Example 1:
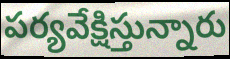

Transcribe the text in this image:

పర్యవేక్షిస్తున్నారు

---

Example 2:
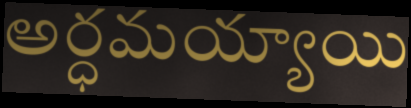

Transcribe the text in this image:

అర్ధమయ్యాయి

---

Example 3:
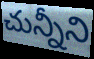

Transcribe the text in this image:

చున్నీని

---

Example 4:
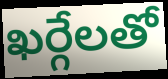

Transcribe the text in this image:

ఖర్గేలతో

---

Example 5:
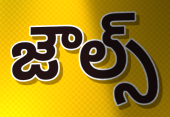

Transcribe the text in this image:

జౌల్స్